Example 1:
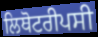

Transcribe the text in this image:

ਲਿਥੋਟਰੀਪਸੀ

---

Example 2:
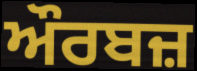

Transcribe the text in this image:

ਔਰਬਜ਼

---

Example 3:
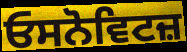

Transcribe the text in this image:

ਓਸਨੋਵਿਟਜ਼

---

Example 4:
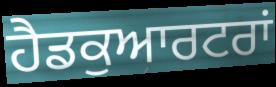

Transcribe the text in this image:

ਹੈਡਕੁਆਰਟਰਾਂ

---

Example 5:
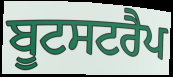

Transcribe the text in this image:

ਬੂਟਸਟਰੈਪ